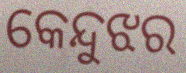
କେନ୍ଦୁଝର